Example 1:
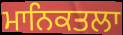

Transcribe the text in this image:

ਮਾਨਿਕਤਲਾ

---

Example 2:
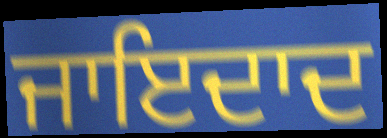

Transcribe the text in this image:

ਜਾਇਦਾਦ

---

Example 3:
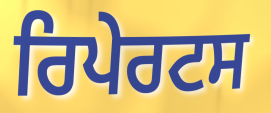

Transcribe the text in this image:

ਰਿਪੇਰਟਸ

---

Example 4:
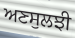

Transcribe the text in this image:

ਅਣਸੁਲਝੀ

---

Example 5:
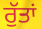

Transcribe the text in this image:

ਰੁੱਤਾਂ